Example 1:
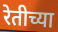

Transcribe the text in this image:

रेतीच्या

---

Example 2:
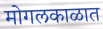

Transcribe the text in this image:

मोगलकाळात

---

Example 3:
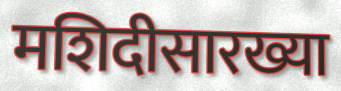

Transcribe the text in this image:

मशिदीसारख्या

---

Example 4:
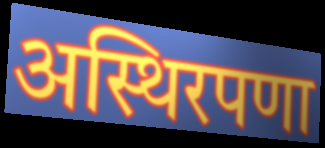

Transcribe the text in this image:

अस्थिरपणा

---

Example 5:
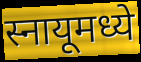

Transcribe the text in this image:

स्नायूमध्ये